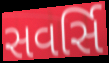
સવર્સિ